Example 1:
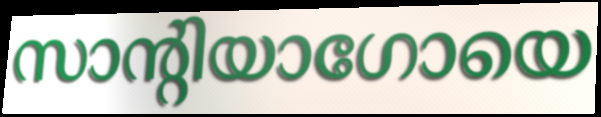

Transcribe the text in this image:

സാന്റിയാഗോയെ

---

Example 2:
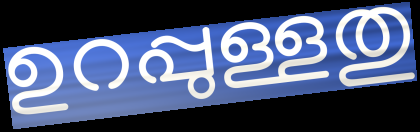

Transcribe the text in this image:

ഉറപ്പുള്ളതു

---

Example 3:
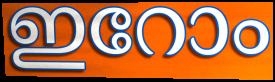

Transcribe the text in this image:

ഇറോം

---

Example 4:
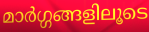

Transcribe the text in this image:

മാർഗ്ഗങ്ങളിലൂടെ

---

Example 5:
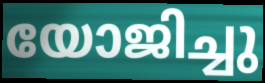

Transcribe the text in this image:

യോജിച്ചു